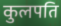
कुलपति